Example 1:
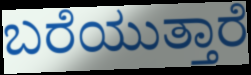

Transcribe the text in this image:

ಬರೆಯುತ್ತಾರೆ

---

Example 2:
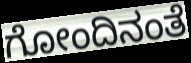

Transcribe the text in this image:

ಗೋಂದಿನಂತೆ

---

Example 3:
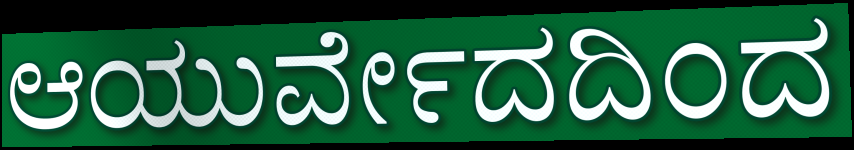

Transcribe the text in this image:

ಆಯುರ್ವೇದದಿಂದ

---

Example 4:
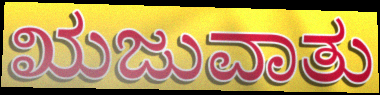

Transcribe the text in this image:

ಋಜುವಾತು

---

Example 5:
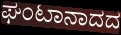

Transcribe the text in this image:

ಘಂಟಾನಾದದ